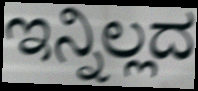
ಇನ್ನಿಲ್ಲದ